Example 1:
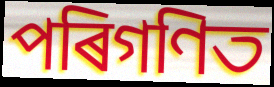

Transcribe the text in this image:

পৰিগণিত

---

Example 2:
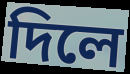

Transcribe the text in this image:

দিলে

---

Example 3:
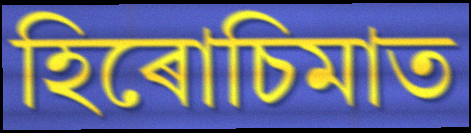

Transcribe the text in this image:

হিৰোচিমাত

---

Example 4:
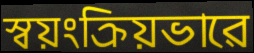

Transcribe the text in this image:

স্বয়ংক্ৰিয়ভাৱে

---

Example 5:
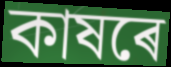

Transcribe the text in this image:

কাষৰে